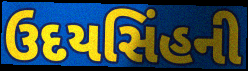
ઉદયસિંહની